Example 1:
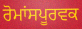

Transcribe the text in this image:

ਰੋਮਾਂਸਪੂਰਵਕ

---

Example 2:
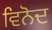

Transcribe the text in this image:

ਵਿਨੋਦ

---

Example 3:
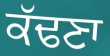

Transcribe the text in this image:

ਕੱਢਣਾ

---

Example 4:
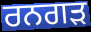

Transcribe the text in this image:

ਰਨਗੜ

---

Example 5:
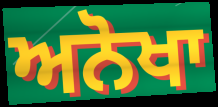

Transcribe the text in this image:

ਅਨੋਖਾ